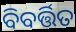
ବିବର୍ତ୍ତିତ